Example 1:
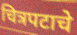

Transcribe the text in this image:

चित्रपटाचे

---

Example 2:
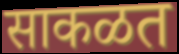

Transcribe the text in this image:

साकळत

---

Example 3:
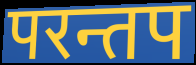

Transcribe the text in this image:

परन्तप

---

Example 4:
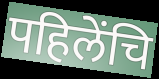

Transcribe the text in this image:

पहिलेंचि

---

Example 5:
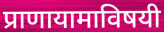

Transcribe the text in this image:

प्राणायामाविषयी